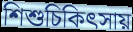
শিশুচিকিৎসায়